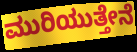
ಮುರಿಯುತ್ತೇನೆ